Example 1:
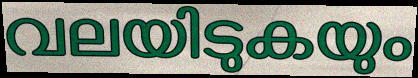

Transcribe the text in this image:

വലയിടുകയും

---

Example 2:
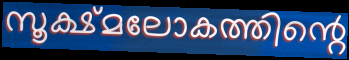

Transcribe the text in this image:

സൂക്ഷ്മലോകത്തിന്റെ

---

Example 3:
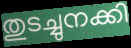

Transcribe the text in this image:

തുടച്ചുനക്കി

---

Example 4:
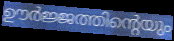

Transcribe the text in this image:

ഊർജ്ജത്തിന്റെയും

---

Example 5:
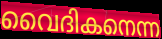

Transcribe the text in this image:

വൈദികനെന്ന